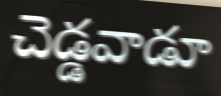
చెడ్డవాడూ